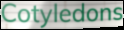
Cotyledons